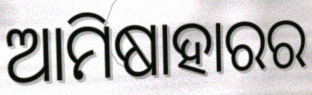
ଆମିଷାହାରର